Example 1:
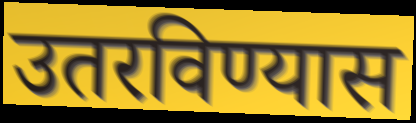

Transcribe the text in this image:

उतरविण्यास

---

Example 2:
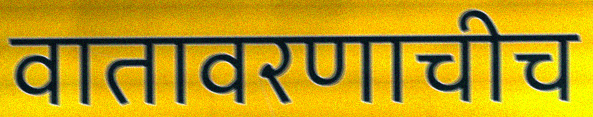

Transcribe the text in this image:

वातावरणाचीच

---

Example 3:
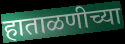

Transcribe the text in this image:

हाताळणीच्या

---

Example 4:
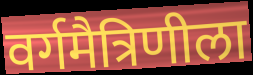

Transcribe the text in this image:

वर्गमैत्रिणीला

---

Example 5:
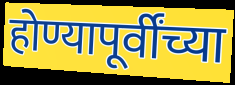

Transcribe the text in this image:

होण्यापूर्वींच्या